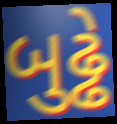
બુઢ્ઢે